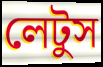
লেটুস